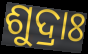
ଶୁଦ୍ରାଃ